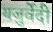
यजुर्वेदी